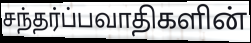
சந்தர்ப்பவாதிகளின்